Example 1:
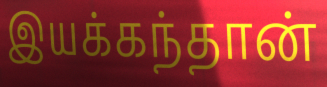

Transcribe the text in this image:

இயக்கந்தான்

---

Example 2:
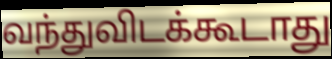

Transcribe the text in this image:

வந்துவிடக்கூடாது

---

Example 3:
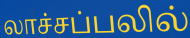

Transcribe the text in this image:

லாச்சப்பலில்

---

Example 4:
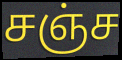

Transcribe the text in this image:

சஞ்ச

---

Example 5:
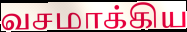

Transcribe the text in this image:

வசமாக்கிய